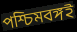
পশ্চিমবঙ্গই